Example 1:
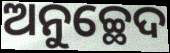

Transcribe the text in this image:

ଅନୁଚ୍ଛେଦ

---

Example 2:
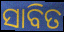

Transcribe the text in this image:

ସାବିତ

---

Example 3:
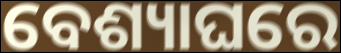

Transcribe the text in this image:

ବେଶ୍ୟାଘରେ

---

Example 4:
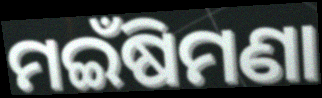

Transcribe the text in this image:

ମଇଁଷିମଣା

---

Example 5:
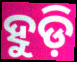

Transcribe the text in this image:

ହୁଡ଼ି